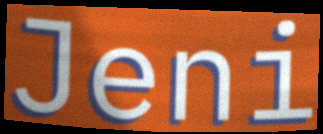
Jeni